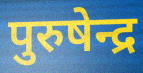
पुरुषेन्द्र